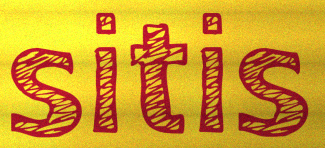
sitis